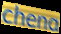
chena